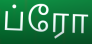
ப்ரோ